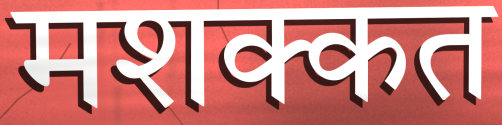
मशक्‍कत